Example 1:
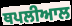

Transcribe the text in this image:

ਥਪਲੀਆਲ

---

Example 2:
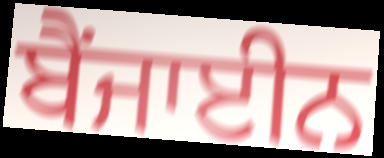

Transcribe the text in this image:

ਬੈਂਜਾਈਨ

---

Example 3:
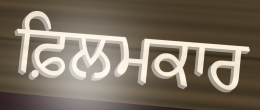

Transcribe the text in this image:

ਫ਼ਿਲਮਕਾਰ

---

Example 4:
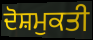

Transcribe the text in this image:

ਦੋਸ਼ਮੁਕਤੀ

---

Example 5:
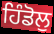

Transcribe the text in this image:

ਹਿੰਡੋਲੁ